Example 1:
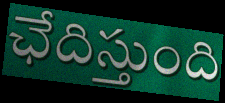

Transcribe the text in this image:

ఛేదిస్తుంది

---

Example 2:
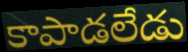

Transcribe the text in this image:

కాపాడలేడు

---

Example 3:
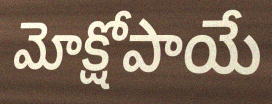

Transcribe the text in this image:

మోక్షోపాయే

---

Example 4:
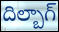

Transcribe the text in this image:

దిల్బాగ్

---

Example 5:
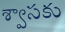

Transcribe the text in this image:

శ్వాసకు